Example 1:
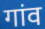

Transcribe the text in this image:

गांव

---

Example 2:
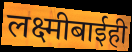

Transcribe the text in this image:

लक्ष्मीबाईही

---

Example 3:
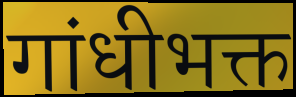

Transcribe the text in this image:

गांधीभक्त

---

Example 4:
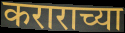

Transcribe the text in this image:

कराराच्या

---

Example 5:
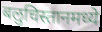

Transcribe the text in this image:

बलुचिस्तानमध्ये